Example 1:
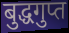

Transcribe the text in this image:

बुद्धगुप्त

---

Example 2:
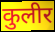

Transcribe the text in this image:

कुलीर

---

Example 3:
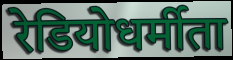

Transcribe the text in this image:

रेडियोधर्मीता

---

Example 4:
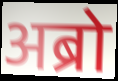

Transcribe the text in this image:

अब्रो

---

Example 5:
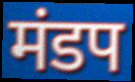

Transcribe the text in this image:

मंडप